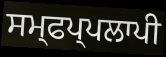
ਸਮ੍ਫਪ੍ਪਲਾਪੀ